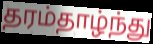
தரம்தாழ்ந்து